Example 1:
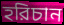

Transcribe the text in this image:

হরিচান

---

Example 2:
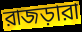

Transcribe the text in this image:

রাজড়ারা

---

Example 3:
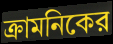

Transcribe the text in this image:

ক্রামনিকের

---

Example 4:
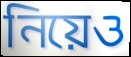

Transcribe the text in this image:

নিয়েও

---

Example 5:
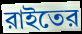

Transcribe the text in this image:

রাইতের